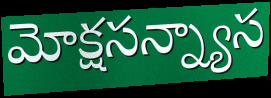
మోక్షసన్న్యాస